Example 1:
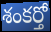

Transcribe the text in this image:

శంకర్తో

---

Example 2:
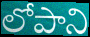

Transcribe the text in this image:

లోపాని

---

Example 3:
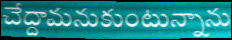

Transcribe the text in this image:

చేద్దామనుకుంటున్నాను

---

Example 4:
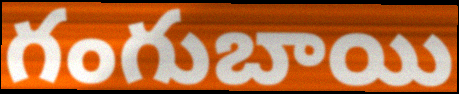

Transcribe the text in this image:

గంగుబాయి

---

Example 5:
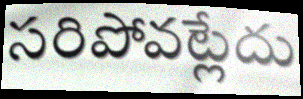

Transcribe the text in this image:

సరిపోవట్లేదు